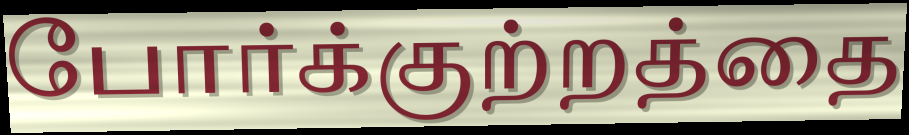
போர்க்குற்றத்தை